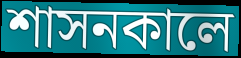
শাসনকালে